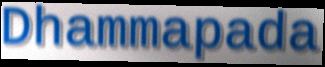
Dhammapada